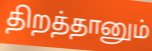
திறத்தானும்